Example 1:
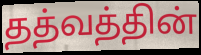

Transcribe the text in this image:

தத்வத்தின்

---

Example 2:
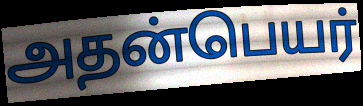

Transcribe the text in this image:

அதன்பெயர்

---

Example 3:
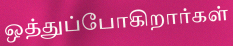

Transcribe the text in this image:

ஒத்துப்போகிறார்கள்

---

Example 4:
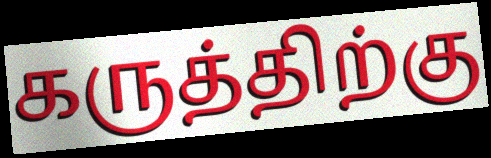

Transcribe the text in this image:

கருத்திற்கு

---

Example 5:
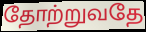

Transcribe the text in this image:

தோற்றுவதே